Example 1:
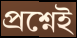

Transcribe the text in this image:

প্রশ্নেই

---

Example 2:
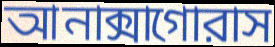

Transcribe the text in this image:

আনাক্সাগোরাস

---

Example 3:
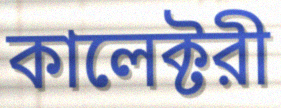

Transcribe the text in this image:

কালেক্টরী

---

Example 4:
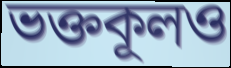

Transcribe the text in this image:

ভক্তকূলও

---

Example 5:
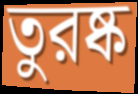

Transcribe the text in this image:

তুরষ্ক